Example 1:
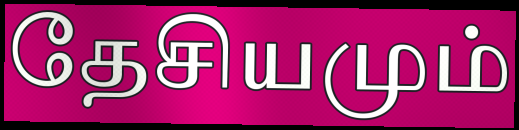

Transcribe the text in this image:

தேசியமும்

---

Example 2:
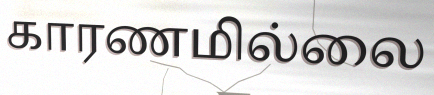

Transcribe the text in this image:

காரணமில்லை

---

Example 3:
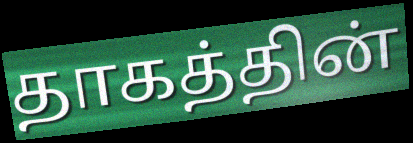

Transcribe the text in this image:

தாகத்தின்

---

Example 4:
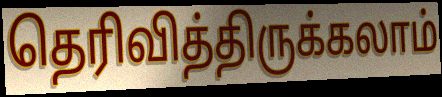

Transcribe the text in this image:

தெரிவித்திருக்கலாம்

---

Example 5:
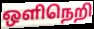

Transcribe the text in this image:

ஒளிநெறி